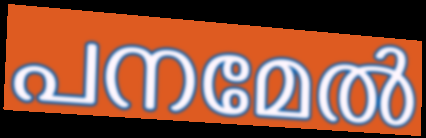
പനമേൽ